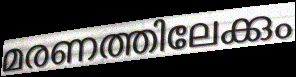
മരണത്തിലേക്കും